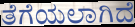
ತೆಗೆಯಲಾಗಿದೆ